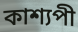
কাশ্যপী